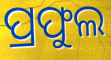
ପ୍ରଫୁଲ